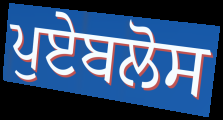
ਪੁਏਬਲੋਸ